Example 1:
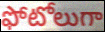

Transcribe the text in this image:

ఫోటోలుగా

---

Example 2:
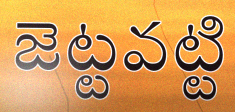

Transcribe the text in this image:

జెట్టవట్టి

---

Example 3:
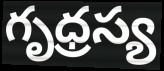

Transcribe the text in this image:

గృధ్రస్య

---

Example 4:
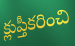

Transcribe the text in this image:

క్లుప్తీకరించి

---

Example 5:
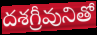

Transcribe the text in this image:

దశగ్రీవునితో